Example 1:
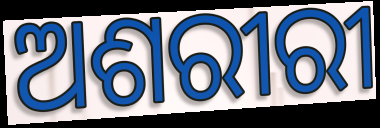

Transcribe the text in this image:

ଅଶରୀରୀ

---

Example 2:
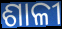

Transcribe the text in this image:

ଶାଳୀ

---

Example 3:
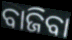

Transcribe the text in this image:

ବାଜିବା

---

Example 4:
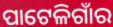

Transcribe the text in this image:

ପାଟେଳିଗାଁର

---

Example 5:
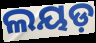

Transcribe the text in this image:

ଲୟଡ଼